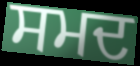
ਸਮਦ